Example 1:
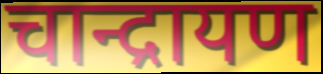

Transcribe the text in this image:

चान्द्रायण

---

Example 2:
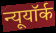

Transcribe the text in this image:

न्यूयॉर्क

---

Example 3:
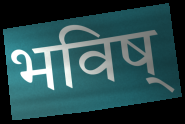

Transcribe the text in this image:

भविष्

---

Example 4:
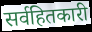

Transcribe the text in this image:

सर्वहितकारी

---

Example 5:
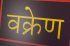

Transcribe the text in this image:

वक्रेण